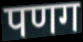
पणग